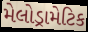
મેલોડ્રામેટિક